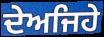
ਦੇਅਜਿਹੇ